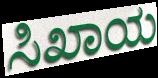
ಸಿಖಾಯ